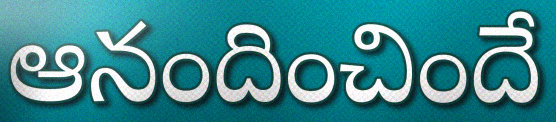
ఆనందించిందే